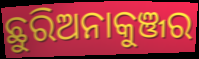
ଛୁରିଅନାକୁଞ୍ଜର